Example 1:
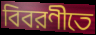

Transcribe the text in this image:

বিবরণীতে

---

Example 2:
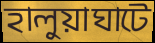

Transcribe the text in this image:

হালুয়াঘাটে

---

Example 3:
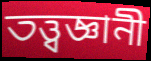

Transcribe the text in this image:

তত্ত্বজ্ঞানী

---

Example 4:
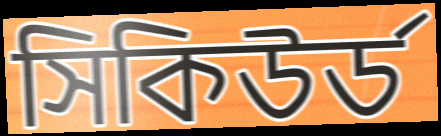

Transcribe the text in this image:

সিকিউর্ড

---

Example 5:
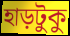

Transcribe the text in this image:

হাড়টুকু